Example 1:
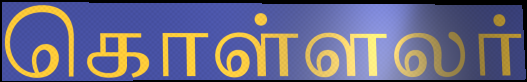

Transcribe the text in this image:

கொள்ளலர்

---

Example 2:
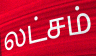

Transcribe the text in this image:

லட்சம்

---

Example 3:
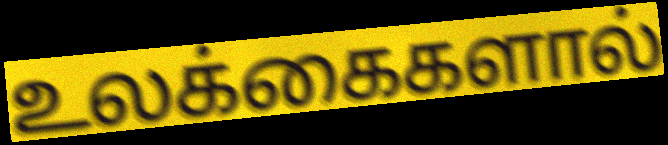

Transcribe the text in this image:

உலக்கைகளால்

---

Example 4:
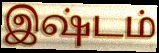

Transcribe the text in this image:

இஷ்டம்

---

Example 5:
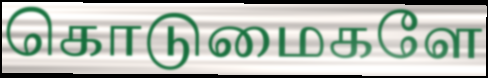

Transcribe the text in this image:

கொடுமைகளே